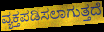
ವ್ಯಕ್ತಪಡಿಸಲಾಗುತ್ತದೆ